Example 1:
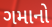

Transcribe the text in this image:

ગમાનો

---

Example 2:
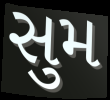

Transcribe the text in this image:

સુમ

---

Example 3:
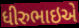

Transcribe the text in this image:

ધીરુભાઇએ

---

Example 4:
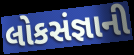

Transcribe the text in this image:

લોકસંજ્ઞાની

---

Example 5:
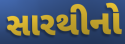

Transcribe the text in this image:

સારથીનો